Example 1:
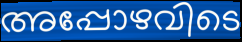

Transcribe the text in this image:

അപ്പോഴവിടെ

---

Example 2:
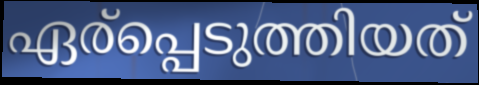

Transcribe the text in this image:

ഏര്പ്പെടുത്തിയത്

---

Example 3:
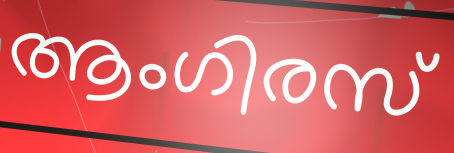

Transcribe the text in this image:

ആംഗിരസ്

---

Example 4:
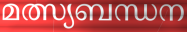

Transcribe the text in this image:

മത്സ്യബന്ധന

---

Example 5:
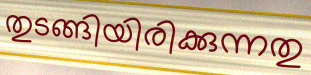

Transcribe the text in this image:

തുടങ്ങിയിരിക്കുന്നതു